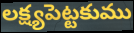
లక్ష్యపెట్టకుము